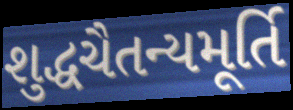
શુદ્ધચૈતન્યમૂર્તિ